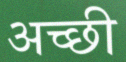
अच्छी